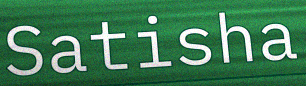
Satisha